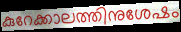
കുറേക്കാലത്തിനുശേഷം